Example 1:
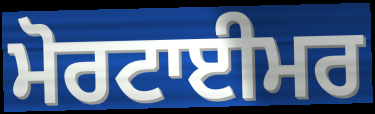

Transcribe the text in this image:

ਮੋਰਟਾਈਮਰ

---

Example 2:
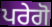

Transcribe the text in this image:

ਪਰੇਗੋ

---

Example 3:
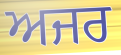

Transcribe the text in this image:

ਅਜਰ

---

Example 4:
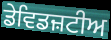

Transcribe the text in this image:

ਡੇਵਿਡਜ਼ਟੀਅ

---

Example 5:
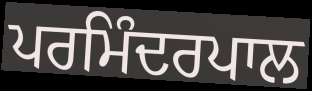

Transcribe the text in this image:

ਪਰਮਿੰਦਰਪਾਲ